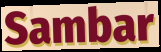
Sambar